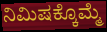
ನಿಮಿಷಕ್ಕೊಮ್ಮೆ